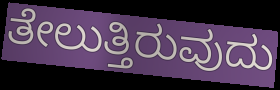
ತೇಲುತ್ತಿರುವುದು